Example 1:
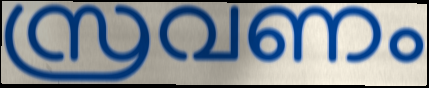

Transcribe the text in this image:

സ്രവണം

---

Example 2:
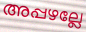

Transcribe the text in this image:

അപ്പഴല്ലേ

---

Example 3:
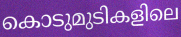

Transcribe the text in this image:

കൊടുമുടികളിലെ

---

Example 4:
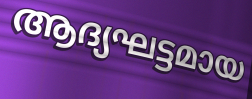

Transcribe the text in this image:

ആദ്യഘട്ടമായ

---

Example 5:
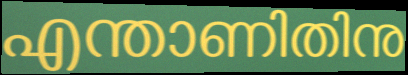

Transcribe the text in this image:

എന്താണിതിനു